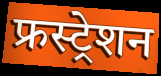
फ्रस्‍ट्रेशन